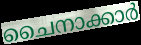
ചൈനാക്കാർ